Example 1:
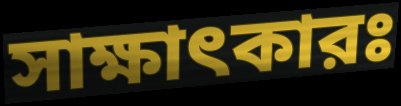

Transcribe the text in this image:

সাক্ষাৎকারঃ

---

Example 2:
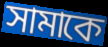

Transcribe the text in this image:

সামাকে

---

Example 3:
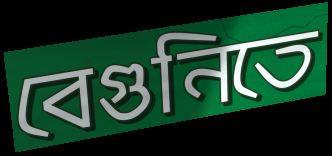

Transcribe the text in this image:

বেগুনিতে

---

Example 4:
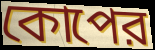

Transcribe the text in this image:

কোপের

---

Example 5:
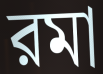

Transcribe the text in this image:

রমা